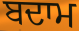
ਬਦਾਮ